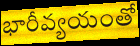
భారీవ్యయంతో